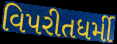
વિપરીતધર્મી